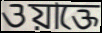
ওয়াক্তে